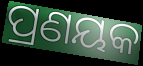
ପ୍ରଣୟକ